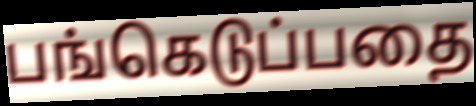
பங்கெடுப்பதை